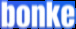
bonke